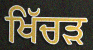
ਖਿੱਚੜ